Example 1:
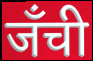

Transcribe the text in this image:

जँची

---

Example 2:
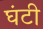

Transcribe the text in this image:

घंटी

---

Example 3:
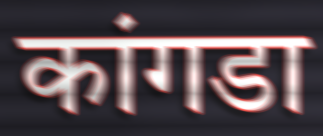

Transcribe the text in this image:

कांगडा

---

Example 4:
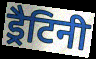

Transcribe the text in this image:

ड्रैटिनी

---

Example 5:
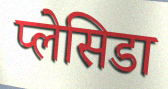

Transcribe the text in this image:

प्लेसिडा